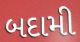
બદામી